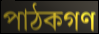
পাঠকগণ